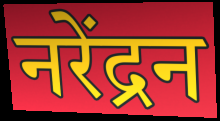
नरेंद्रन